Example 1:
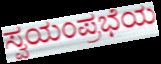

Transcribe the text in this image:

ಸ್ವಯಂಪ್ರಭೆಯ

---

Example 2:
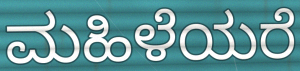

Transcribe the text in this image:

ಮಹಿಳೆಯರೆ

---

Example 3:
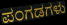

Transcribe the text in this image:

ಪಂಗಡಗಳು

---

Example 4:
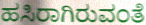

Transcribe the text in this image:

ಹಸಿರಾಗಿರುವಂತೆ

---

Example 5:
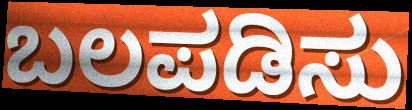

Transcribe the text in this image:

ಬಲಪಡಿಸು